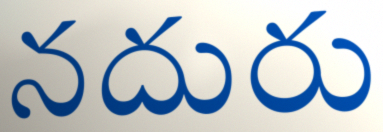
నదురు